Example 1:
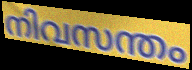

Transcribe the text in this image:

നിവസന്തം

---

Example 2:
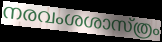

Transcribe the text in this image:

നരവംശശാസ്‌ത്രം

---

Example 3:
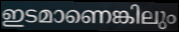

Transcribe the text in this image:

ഇടമാണെങ്കിലും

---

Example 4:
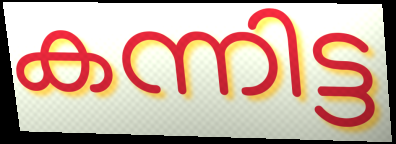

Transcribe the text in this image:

കന്നിട്ട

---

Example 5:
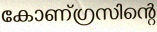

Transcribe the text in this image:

കോണ്ഗ്രസിന്റെ